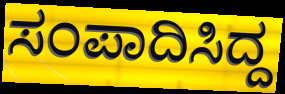
ಸಂಪಾದಿಸಿದ್ದ